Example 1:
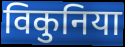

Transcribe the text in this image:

विकुनिया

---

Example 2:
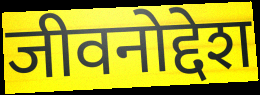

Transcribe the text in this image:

जीवनोद्देश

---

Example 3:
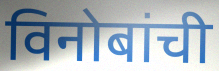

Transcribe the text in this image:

विनोबांची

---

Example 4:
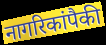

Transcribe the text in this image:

नागरिकांपैकी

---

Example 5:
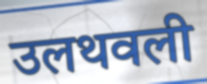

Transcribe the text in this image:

उलथवली